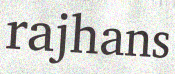
rajhans